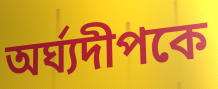
অর্ঘ্যদীপকে